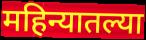
महिन्यातल्या